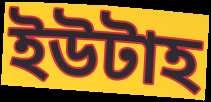
ইউটাহ